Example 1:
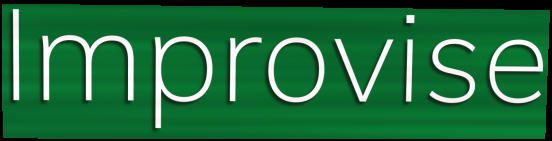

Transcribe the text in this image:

Improvise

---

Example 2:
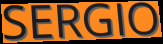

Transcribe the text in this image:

SERGIO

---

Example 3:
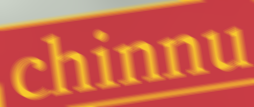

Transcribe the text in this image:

chinnu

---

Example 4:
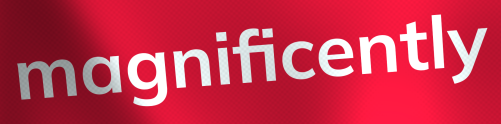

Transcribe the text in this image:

magnificently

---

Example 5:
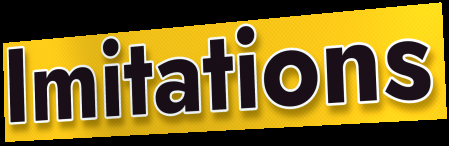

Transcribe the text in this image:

Imitations